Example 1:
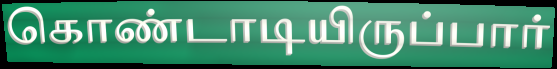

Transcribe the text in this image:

கொண்டாடியிருப்பார்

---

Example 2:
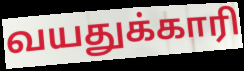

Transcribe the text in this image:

வயதுக்காரி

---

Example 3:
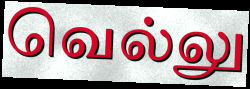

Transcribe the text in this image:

வெல்லு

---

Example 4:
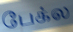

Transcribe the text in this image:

பேக்ல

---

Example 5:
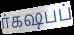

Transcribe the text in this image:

ர்கஷபப்